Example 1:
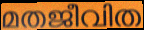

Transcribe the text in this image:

മതജീവിത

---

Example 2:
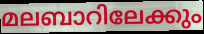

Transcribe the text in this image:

മലബാറിലേക്കും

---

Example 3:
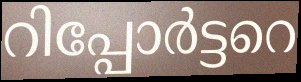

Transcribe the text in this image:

റിപ്പോർട്ടറെ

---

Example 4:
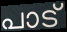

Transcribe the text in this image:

പാട്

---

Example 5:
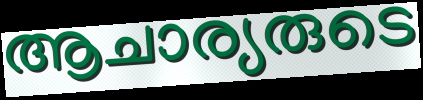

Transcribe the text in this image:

ആചാര്യരുടെ